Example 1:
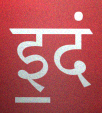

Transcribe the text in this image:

इ॒दं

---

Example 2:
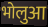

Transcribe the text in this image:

भोलुआ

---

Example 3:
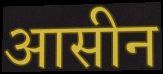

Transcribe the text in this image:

आसीन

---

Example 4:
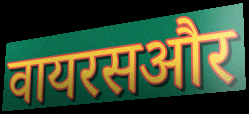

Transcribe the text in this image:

वायरसऔर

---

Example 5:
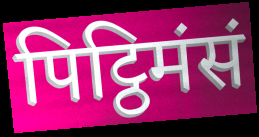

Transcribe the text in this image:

पिट्ठिमंसं